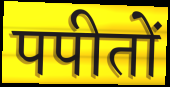
पपीतों